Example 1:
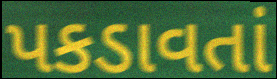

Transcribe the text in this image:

પકડાવતાં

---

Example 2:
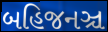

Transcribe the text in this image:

બહિજનઞ્ચ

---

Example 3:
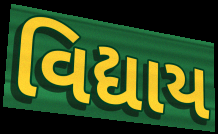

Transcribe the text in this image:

વિદ્યાય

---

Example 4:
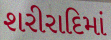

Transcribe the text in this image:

શરીરાદિમાં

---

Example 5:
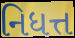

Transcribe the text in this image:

નિધત્ત